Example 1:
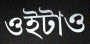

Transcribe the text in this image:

ওইটাও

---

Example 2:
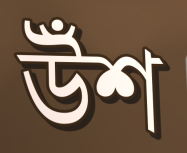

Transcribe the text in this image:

উঁশ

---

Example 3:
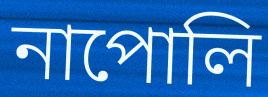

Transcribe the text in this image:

নাপোলি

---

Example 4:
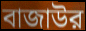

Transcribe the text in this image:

বাজাউর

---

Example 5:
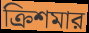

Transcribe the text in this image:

ক্রিশমার